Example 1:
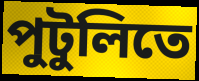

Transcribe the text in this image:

পুটুলিতে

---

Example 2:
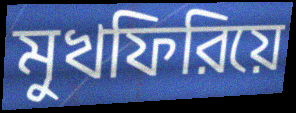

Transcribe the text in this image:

মুখফিরিয়ে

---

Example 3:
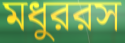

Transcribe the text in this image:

মধুররস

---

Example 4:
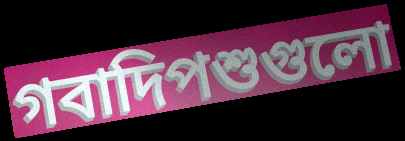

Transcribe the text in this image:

গবাদিপশুগুলো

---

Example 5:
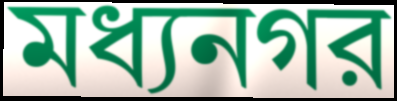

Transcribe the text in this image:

মধ্যনগর